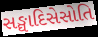
સઙ્ઘાદિસેસોતિ